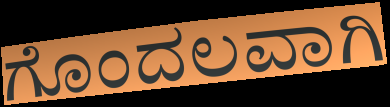
ಗೊಂದಲವಾಗಿ